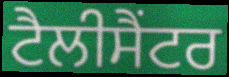
ਟੈਲੀਸੈਂਟਰ